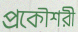
প্রকৌশরী